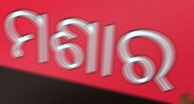
ମଶାର